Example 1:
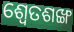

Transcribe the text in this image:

ଶ୍ୱେତଶଙ୍ଖ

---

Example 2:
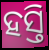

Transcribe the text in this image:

ହସ୍ତି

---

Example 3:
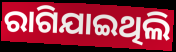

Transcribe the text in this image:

ରାଗିଯାଇଥିଲି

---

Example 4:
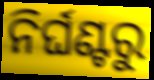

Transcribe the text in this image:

ନିର୍ଘଣ୍ଟରୁ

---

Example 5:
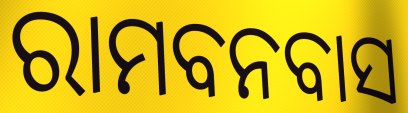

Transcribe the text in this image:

ରାମବନବାସ